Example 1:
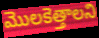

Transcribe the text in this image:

మొలకెత్తాలని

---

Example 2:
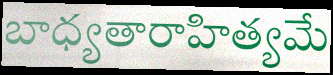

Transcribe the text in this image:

బాధ్యతారాహిత్యమే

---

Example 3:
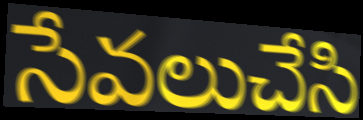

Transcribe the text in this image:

సేవలుచేసి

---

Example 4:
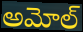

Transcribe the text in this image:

అమోల్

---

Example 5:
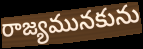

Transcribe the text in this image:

రాజ్యమునకును